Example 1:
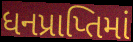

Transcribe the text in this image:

ધનપ્રાપ્તિમાં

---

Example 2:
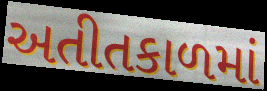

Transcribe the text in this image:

અતીતકાળમાં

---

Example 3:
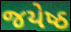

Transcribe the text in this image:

જયેષ્ઠ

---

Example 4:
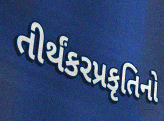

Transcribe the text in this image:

તીર્થંકરપ્રકૃતિનો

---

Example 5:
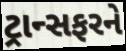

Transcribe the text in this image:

ટ્રાન્સફરને